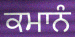
ਕਮਾਨੰ